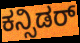
ಕನ್ಸಿಡರ್